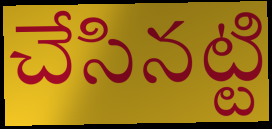
చేసినట్టి